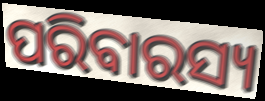
ପରିବାରସ୍ୟ